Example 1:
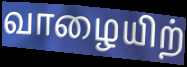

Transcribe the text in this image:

வாழையிற்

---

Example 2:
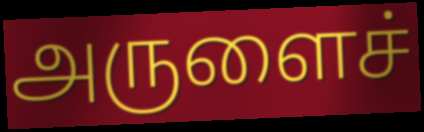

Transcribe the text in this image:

அருளைச்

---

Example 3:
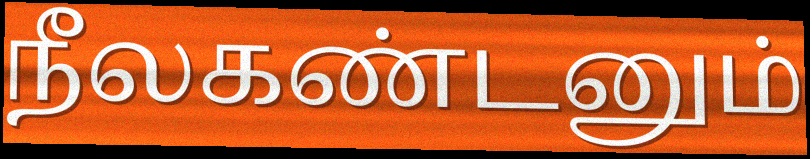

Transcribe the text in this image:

நீலகண்டனும்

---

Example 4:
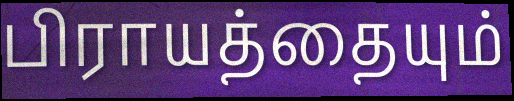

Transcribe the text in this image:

பிராயத்தையும்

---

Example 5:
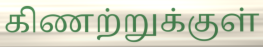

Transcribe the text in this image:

கிணற்றுக்குள்